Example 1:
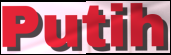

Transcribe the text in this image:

Putih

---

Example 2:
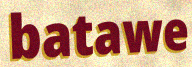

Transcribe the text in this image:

batawe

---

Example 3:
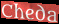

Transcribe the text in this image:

Cheda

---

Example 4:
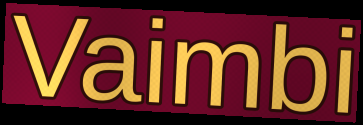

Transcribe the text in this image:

Vaimbi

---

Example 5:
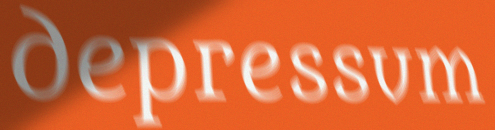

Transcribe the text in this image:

depressum